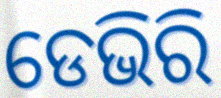
ଡେଭିରି